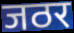
जठर